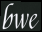
bwe